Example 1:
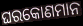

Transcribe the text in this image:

ଘରକୋଣମାନ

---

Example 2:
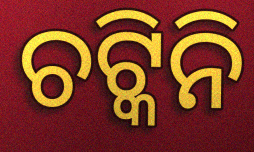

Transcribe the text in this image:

ଚଟ୍କିନି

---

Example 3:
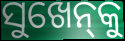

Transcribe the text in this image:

ସୁଖେନ୍‌କୁ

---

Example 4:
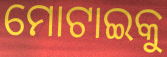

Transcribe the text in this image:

ମୋଟାଇକୁ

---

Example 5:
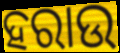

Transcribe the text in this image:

ହରାଉ